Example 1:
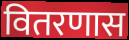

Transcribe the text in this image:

वितरणास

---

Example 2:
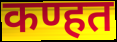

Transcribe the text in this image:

कण्हत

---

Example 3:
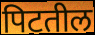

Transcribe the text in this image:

पिटतील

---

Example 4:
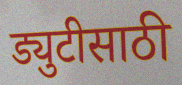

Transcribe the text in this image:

ड्युटीसाठी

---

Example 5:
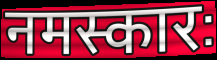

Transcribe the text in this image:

नमस्कारः